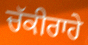
ਚੱਕੀਰਾਹੇ